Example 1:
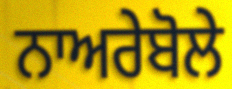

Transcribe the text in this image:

ਨਾਅਰੇਬੋਲੇ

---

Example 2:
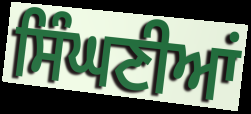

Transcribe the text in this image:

ਸਿੰਘਣੀਆਂ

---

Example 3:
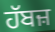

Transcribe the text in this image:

ਹੱਬਜ਼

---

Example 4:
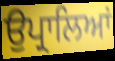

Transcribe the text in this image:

ਉਪ੍ਰਾਲਿਆਂ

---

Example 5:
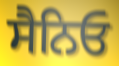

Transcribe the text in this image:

ਸੈਨਿਓ